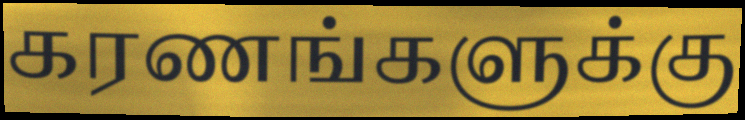
கரணங்களுக்கு